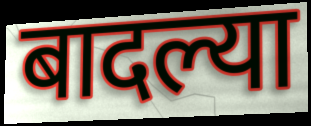
बादल्या